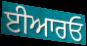
ਈਆਰਓ